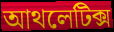
আথলেটিক্স